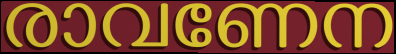
രാവണേന